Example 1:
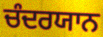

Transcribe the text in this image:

ਚੰਦਰਯਾਨ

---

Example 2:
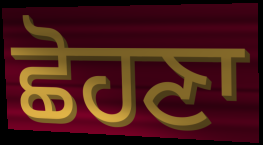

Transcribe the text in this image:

ਛੋਹਣਾ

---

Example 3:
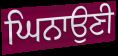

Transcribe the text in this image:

ਘਿਨਾਉਣੀ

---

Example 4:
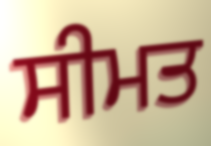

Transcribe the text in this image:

ਸੀਮਤ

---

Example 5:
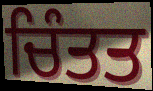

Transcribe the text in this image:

ਚਿੰਤਤ